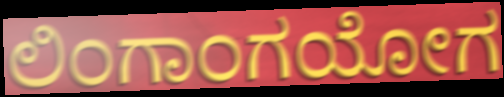
ಲಿಂಗಾಂಗಯೋಗ